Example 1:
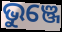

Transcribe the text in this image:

ଭୁଞ୍ଜେ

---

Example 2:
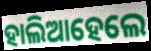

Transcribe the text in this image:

ହାଲିଆହେଲେ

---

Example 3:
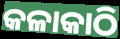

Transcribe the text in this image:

କଳାକାଠି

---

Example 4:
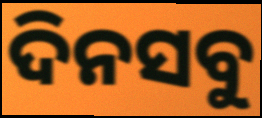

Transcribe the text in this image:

ଦିନସବୁ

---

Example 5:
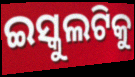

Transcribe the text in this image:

ଇସ୍କୁଲଟିକୁ